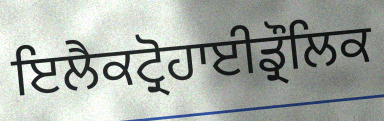
ਇਲੈਕਟ੍ਰੋਹਾਈਡ੍ਰੌਲਿਕ